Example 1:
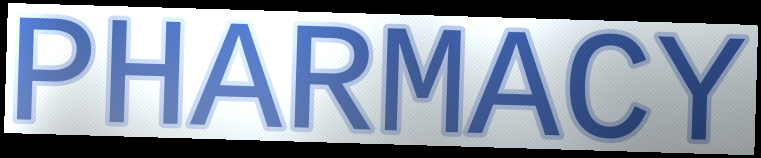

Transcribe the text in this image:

PHARMACY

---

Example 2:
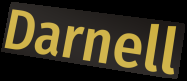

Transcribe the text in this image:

Darnell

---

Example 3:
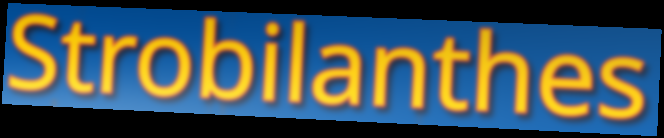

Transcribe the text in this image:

Strobilanthes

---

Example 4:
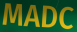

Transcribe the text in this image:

MADC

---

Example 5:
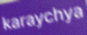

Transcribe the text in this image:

karaychya